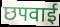
छपवाई